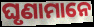
ଘୃଣାମାନେ